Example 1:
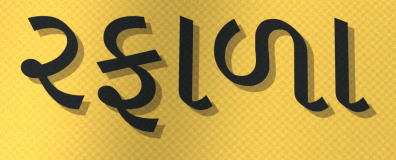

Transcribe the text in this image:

રફાળા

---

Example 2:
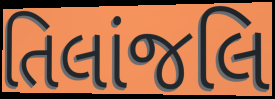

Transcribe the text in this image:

તિલાંજલિ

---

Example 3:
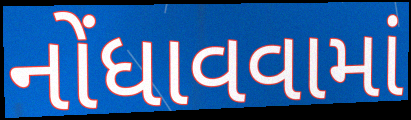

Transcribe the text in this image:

નોંધાવવામાં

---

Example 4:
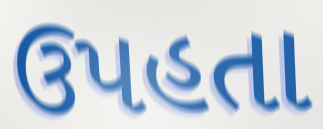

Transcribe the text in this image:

ઉપહતા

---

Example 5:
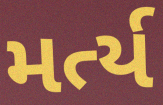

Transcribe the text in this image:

મર્ત્ય